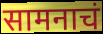
सामनाचं